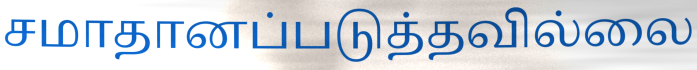
சமாதானப்படுத்தவில்லை